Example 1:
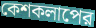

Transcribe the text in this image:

কেশকলাপের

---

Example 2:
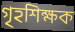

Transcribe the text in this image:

গৃহশিক্ষক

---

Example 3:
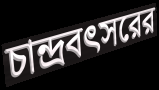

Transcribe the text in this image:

চান্দ্রবৎসরের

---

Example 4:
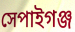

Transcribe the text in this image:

সেপাইগঞ্জ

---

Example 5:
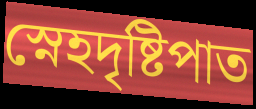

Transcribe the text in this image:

স্নেহদৃষ্টিপাত